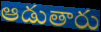
ఆడుతారు